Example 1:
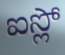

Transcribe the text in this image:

ఐస్లో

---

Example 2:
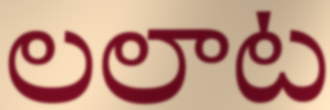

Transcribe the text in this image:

లలాట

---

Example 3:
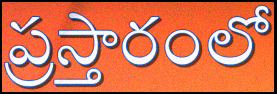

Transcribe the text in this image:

ప్రస్తారంలో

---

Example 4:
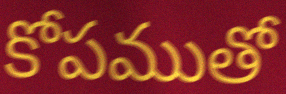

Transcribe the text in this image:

కోపముతో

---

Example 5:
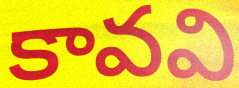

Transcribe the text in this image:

కావవి